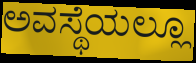
ಅವಸ್ಥೆಯಲ್ಲೂ